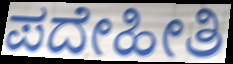
ಪದೇಹೀತಿ